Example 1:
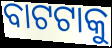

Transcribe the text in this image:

ବାଟଟାକୁ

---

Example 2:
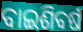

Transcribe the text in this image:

ବାଇଶିବର୍ଷ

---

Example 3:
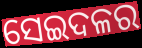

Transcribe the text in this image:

ସେଇଦଳର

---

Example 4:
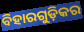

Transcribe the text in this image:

ବିହାରଗୁଡ଼ିକର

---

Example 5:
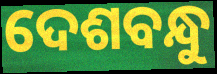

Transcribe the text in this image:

ଦେଶବନ୍ଧୁ